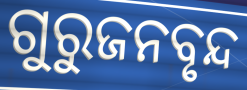
ଗୁରୁଜନବୃନ୍ଦ